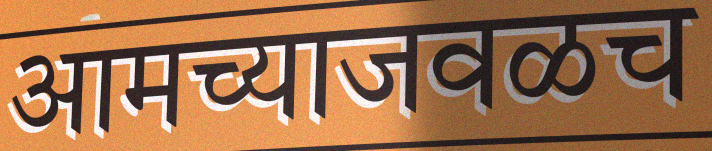
आमच्याजवळच